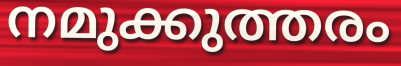
നമുക്കുത്തരം